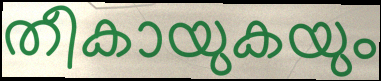
തീകായുകയും